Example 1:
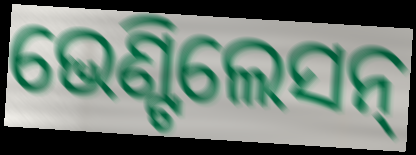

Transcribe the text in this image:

ଭେଣ୍ଟିଲେସନ୍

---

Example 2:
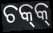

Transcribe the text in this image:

ଚକ୍‌କ୍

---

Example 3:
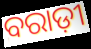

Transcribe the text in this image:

ବରାଡ଼ୀ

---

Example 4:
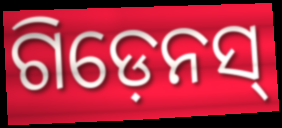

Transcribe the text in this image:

ଗିଡ଼େନସ୍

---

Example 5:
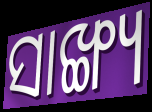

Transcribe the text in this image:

ସାଙ୍ଖ୍ୟ